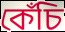
কেঁচি